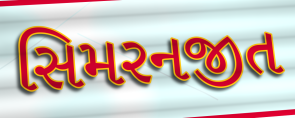
સિમરનજીત